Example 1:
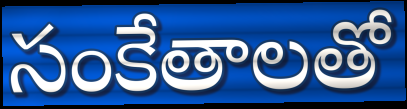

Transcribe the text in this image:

సంకేతాలతో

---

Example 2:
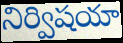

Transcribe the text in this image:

నిర్విషయా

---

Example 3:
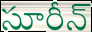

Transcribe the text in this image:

సూరీన్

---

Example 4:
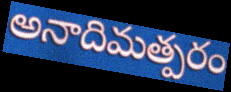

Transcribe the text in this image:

అనాదిమత్పరం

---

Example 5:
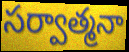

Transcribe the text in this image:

సర్వాత్మనా